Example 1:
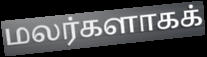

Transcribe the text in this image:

மலர்களாகக்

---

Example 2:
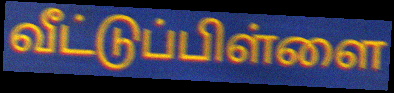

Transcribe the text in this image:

வீட்டுப்பிள்ளை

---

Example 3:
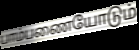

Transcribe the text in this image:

பாம்பணையோடும்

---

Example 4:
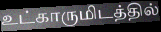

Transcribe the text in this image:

உட்காருமிடத்தில்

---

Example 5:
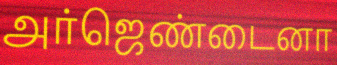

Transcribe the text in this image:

அர்ஜெண்டைனா